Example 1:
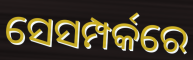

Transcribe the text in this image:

ସେସମ୍ପର୍କରେ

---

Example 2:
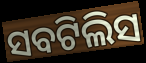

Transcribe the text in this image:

ସବଟିଲିସ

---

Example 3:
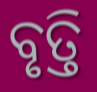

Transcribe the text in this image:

ବୃତ୍ତି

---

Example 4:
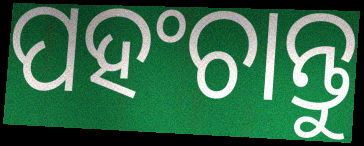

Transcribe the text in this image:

ପହଂଚାନ୍ତୁ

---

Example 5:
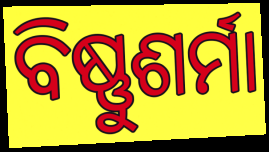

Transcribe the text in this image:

ବିଷ୍ଣୁଶର୍ମା